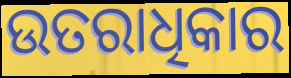
ଉତରାଧିକାର